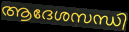
ആദേശസന്ധി